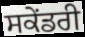
ਸਕੇਂਡਰੀ